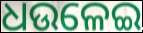
ଧଉଳେଇ